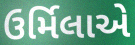
ઉર્મિલાએ